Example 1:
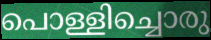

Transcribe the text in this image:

പൊള്ളിച്ചൊരു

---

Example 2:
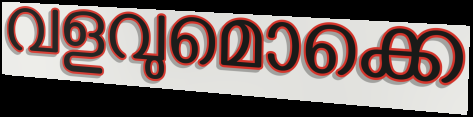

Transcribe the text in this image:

വളവുമൊക്കെ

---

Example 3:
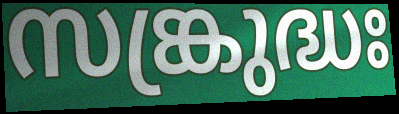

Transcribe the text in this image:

സങ്ക്രുദ്ധഃ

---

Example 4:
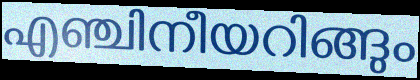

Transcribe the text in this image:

എഞ്ചിനീയറിങ്ങും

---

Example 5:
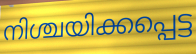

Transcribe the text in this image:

നിശ്ചയിക്കപ്പെട്ട